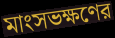
মাংসভক্ষণের